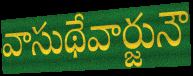
వాసుథేవార్జునౌ